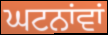
ਘਟਨਾਂਵਾਂ